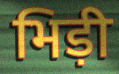
भिड़ी